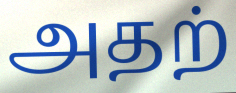
அதற்